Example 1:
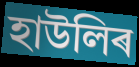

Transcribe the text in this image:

হাউলিৰ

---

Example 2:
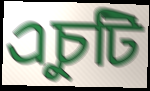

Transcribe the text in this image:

এচুটি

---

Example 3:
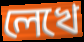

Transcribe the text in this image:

লেখে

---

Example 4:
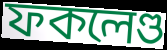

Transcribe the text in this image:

ফকলেণ্ড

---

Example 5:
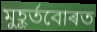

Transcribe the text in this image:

মুহূৰ্তবোৰত